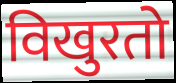
विखुरतो